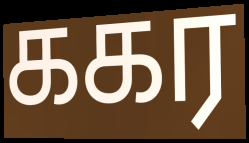
ககர